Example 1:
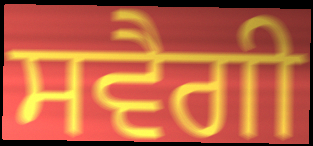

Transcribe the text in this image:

ਸਵੈਗੀ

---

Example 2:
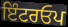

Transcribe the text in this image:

ਇੰਟਰਓਪ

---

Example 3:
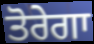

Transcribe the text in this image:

ਤੋਰੇਗਾ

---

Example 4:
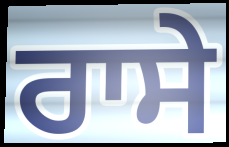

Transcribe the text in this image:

ਰਾਸੇ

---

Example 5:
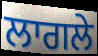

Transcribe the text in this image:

ਲਾਗਲੇ